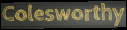
Colesworthy